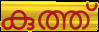
കുത്ത്